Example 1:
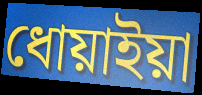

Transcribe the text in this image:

ধোয়াইয়া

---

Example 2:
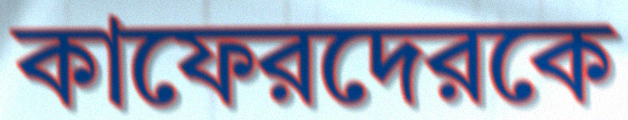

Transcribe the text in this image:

কাফেরদেরকে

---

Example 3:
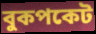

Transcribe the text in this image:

বুকপকেট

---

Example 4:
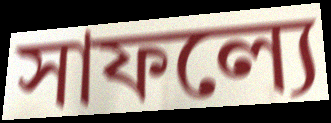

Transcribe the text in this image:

সাফল্যে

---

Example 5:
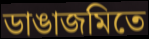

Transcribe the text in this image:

ডাঙাজমিতে